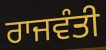
ਰਾਜਵੰਤੀ